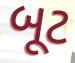
બૂટ